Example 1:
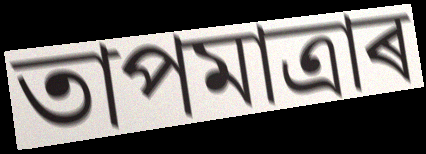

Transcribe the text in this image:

তাপমাত্ৰাৰ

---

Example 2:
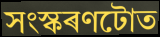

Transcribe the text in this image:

সংস্কৰণটোত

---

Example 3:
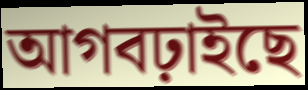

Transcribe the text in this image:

আগবঢ়াইছে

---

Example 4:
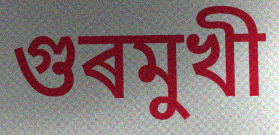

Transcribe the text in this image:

গুৰমুখী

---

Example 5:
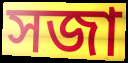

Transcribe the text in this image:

সজা